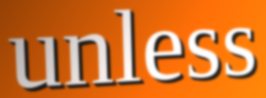
unless